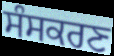
ਸੰਸਕਰਣ